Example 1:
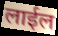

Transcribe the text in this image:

लाईल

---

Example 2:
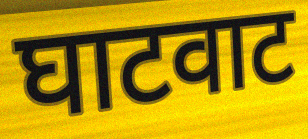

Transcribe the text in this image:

घाटवाट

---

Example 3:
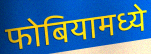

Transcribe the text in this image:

फोबियामध्ये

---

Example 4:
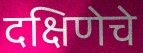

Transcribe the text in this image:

दक्षिणेचे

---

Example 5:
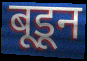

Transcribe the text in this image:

बूडून